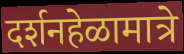
दर्शनहेळामात्रे